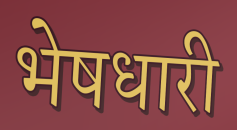
भेषधारी